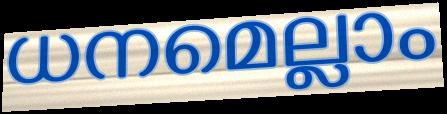
ധനമെല്ലാം